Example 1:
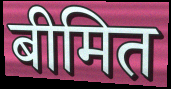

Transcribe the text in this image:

बीमित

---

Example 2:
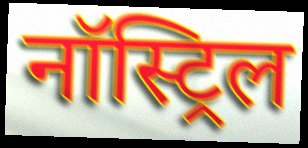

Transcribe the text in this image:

नॉस्ट्रिल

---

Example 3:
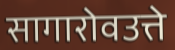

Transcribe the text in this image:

सागारोवउत्ते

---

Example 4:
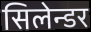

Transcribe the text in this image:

सिलेन्डर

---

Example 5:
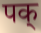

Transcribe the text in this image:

पक्